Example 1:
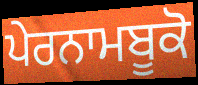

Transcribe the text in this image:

ਪੇਰਨਾਮਬੂਕੋ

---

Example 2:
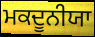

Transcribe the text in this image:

ਮਕਦੂਨੀਯਾ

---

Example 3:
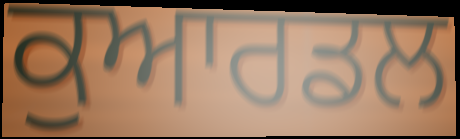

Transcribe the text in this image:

ਕੁਆਰਡਲ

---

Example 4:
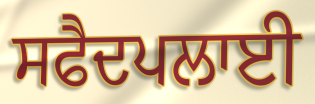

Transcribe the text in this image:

ਸਫੈਦਪਲਾਈ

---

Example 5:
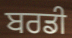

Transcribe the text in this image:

ਬਰਡੀ